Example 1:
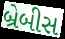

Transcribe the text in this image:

બ્રેબીસ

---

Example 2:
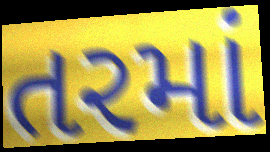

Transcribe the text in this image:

તરમાં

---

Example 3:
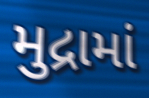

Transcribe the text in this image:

મુદ્રામાં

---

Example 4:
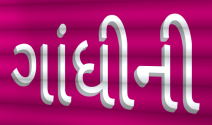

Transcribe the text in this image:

ગાંધીની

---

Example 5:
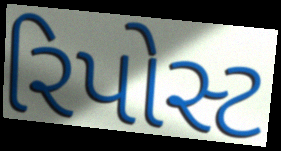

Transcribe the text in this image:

રિપોસ્ટ